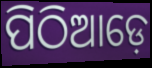
ପିଠିଆଡ଼େ